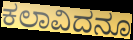
ಕಲಾವಿದನೂ